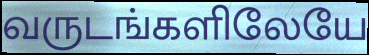
வருடங்களிலேயே